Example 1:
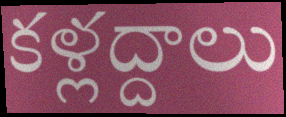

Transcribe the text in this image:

కళ్లద్దాలు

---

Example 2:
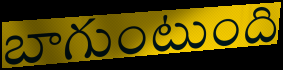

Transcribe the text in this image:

బాగుంటుంది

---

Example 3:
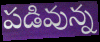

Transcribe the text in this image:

పడివున్న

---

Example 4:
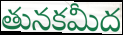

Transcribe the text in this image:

తునకమీద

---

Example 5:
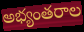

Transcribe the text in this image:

అభ్యంతరాల